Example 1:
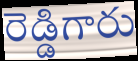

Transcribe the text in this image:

రెడ్డిగారు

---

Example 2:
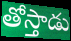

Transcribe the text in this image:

తోస్తాడు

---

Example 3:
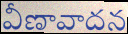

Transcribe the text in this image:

వీణావాదన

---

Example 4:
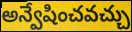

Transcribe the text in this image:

అన్వేషించవచ్చు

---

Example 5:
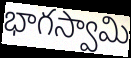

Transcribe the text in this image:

భాగస్వామి